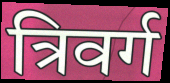
त्रिवर्ग